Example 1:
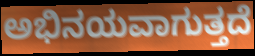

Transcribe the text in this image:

ಅಭಿನಯವಾಗುತ್ತದೆ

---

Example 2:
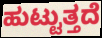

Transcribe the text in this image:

ಹುಟ್ಟುತ್ತದೆ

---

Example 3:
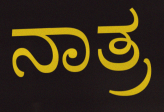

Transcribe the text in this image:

ನಾತ್ರ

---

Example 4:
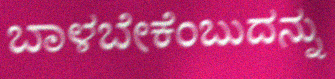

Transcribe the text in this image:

ಬಾಳಬೇಕೆಂಬುದನ್ನು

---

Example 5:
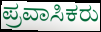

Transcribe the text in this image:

ಪ್ರವಾಸಿಕರು